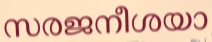
സരജനീശയാ